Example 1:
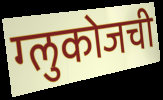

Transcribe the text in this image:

ग्लुकोजची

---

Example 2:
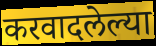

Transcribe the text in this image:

करवादलेल्या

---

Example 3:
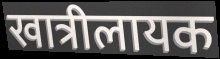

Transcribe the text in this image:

खात्रीलायक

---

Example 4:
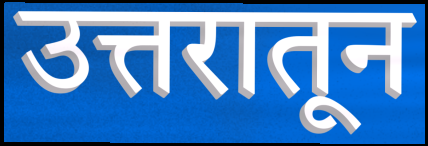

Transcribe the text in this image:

उत्तरातून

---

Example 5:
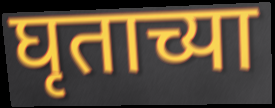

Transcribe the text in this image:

घृताच्या